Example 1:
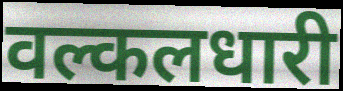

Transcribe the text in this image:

वल्कलधारी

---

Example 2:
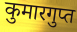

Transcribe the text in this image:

कुमारगुप्त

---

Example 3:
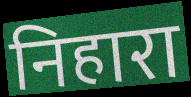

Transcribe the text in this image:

निहारा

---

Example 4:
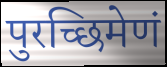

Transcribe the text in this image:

पुरच्छिमेणं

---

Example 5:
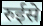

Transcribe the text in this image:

रुईसे